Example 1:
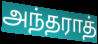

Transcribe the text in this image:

அந்தராத்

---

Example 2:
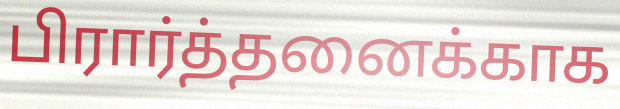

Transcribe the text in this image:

பிரார்த்தனைக்காக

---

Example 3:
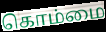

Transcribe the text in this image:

கொம்மை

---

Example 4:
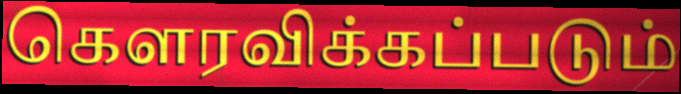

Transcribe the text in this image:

கௌரவிக்கப்படும்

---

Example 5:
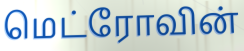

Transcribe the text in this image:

மெட்ரோவின்